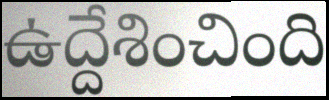
ఉద్దేశించింది